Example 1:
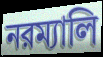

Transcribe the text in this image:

নরম্যালি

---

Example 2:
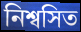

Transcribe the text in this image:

নিশ্বসিত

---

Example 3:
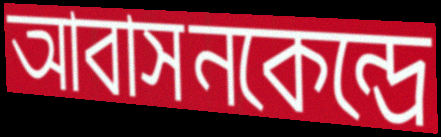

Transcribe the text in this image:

আবাসনকেন্দ্রে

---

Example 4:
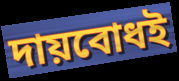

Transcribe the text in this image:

দায়বোধই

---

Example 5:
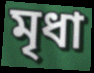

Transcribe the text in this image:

মৃধা